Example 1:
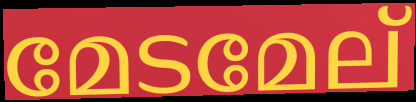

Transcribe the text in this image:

മേടമേല്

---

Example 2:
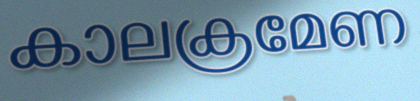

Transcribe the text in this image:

കാലക്രമേണ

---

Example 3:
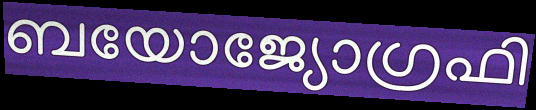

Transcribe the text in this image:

ബയോജ്യോഗ്രഫി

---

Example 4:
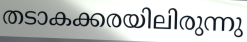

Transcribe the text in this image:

തടാകക്കരയിലിരുന്നു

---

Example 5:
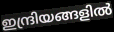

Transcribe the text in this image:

ഇന്ദ്രിയങ്ങളിൽ